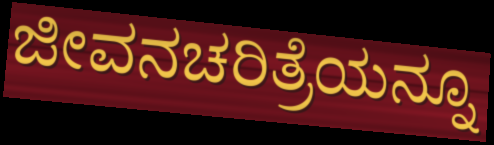
ಜೀವನಚರಿತ್ರೆಯನ್ನೂ